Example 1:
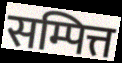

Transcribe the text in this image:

सम्पित्त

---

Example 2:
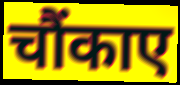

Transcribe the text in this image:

चौंकाए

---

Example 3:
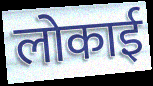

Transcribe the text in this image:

लोकाई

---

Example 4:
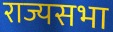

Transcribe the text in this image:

राज्‍यसभा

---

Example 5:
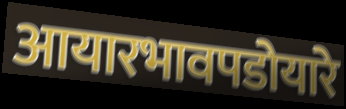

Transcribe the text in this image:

आयारभावपडोयारे